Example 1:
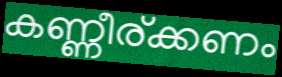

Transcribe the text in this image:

കണ്ണീര്ക്കണം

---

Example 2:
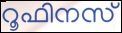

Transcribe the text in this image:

റൂഫിനസ്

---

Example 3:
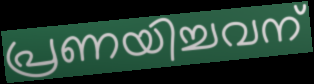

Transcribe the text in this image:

പ്രണയിച്ചവന്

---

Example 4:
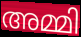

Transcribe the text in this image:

അമ്മി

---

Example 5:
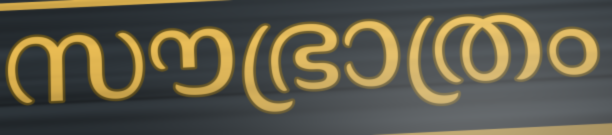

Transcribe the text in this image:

സൗഭ്രാത്രം